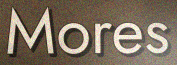
Mores